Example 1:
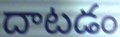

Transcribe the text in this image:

దాటడం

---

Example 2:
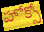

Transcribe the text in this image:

హోక్సో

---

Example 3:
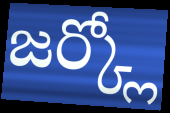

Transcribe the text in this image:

జర్క్లో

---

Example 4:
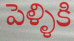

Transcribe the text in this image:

పెళ్ళికి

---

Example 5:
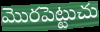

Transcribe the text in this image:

మొరపెట్టుచు